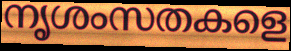
നൃശംസതകളെ